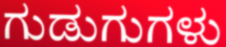
ಗುಡುಗುಗಳು